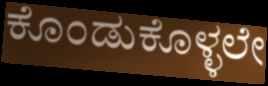
ಕೊಂಡುಕೊಳ್ಳಲೇ